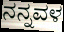
ನನ್ನವಳ